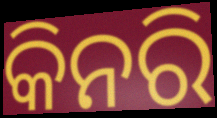
କିନରି